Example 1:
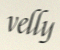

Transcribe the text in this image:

velly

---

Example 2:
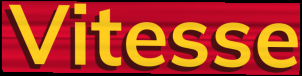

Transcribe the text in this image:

Vitesse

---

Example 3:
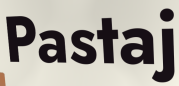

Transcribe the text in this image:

Pastaj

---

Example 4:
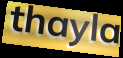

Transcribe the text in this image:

thayla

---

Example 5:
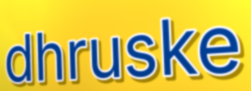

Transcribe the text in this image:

dhruske